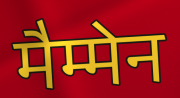
मैम्मेन